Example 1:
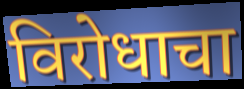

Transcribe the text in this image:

विरोधाचा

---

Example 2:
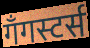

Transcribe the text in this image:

गँगस्टर्स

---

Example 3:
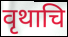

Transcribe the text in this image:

वृथाचि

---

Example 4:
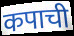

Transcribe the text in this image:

कपाची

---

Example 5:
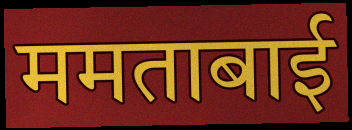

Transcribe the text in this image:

ममताबाई